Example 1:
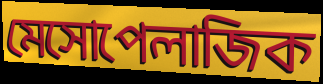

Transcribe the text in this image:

মেসোপেলাজিক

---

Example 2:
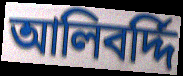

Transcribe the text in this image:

আলিবর্দ্দি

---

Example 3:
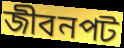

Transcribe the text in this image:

জীবনপট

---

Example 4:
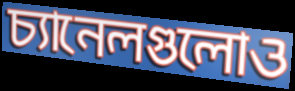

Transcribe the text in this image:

চ্যানেলগুলোও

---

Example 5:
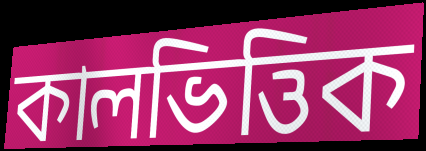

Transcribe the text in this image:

কালভিত্তিক